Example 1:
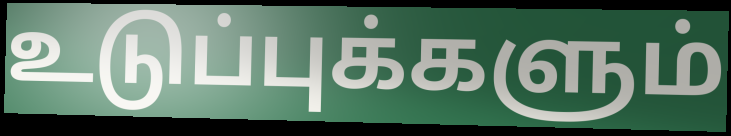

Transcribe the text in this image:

உடுப்புக்களும்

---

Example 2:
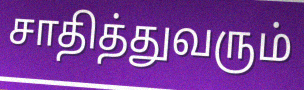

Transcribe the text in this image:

சாதித்துவரும்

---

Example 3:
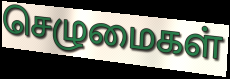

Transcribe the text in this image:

செழுமைகள்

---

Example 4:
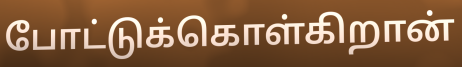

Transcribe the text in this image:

போட்டுக்கொள்கிறான்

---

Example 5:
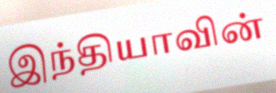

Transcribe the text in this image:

இந்தியாவின்